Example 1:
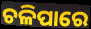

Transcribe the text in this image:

ଚଳିପାରେ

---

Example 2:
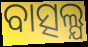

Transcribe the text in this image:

ବାତ୍ସଲ୍ଯ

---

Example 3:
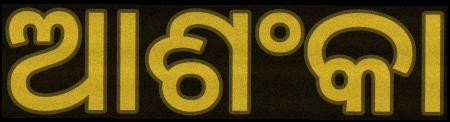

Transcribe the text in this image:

ଆଶଂକା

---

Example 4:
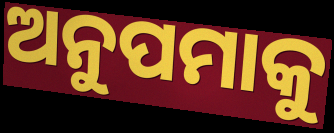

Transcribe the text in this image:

ଅନୁପମାକୁ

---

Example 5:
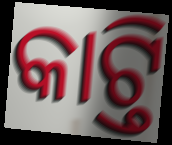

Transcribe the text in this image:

କାଟ୍ତି